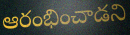
ఆరంభించాడని